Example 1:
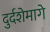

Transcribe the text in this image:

दुर्दशेमागे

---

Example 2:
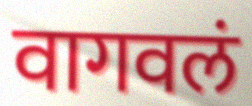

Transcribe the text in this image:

वागवलं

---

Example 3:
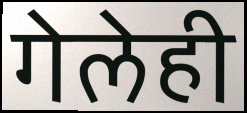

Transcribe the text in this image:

गेलेही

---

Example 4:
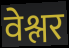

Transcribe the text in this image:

वेश्लर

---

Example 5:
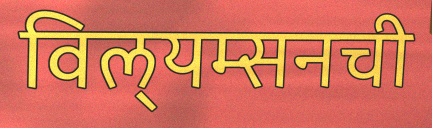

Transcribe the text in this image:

विल्यम्सनची